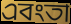
এবংতা